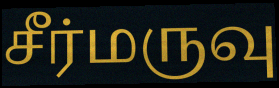
சீர்மருவு